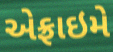
એફ્રાઇમે